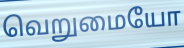
வெறுமையோ